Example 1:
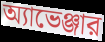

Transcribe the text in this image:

অ্যাভেঞ্জার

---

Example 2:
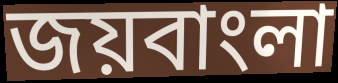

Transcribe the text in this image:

জয়বাংলা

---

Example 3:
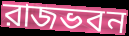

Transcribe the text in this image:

রাজভবন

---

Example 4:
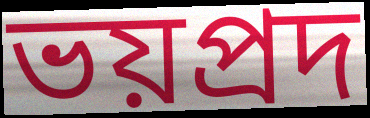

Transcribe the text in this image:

ভয়প্রদ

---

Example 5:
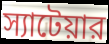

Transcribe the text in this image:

স্যাটেয়ার